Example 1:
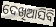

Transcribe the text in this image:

ଦେଖିଆସିବି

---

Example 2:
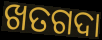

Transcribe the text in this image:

ଖତଗଦା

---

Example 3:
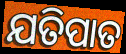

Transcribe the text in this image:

ଯତିପାତ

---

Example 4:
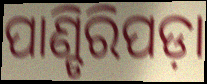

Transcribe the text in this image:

ପାଣ୍ଡିରିପଡ଼ା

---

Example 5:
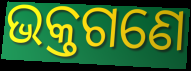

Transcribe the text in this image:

ଭକ୍ତଗଣେ